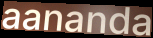
aananda